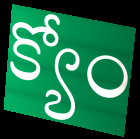
క్యోం